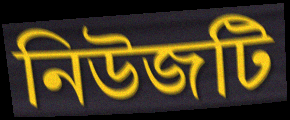
নিউজটি